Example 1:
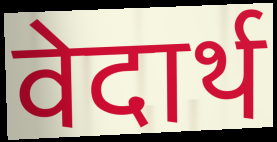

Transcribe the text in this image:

वेदार्थ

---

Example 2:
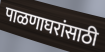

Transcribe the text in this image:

पाळणाघरांसाठी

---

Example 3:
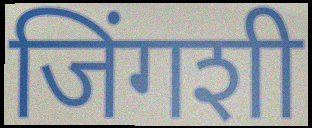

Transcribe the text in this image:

जिंगशी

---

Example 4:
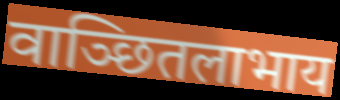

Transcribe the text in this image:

वाञ्छितलाभाय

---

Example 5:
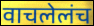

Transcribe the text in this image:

वाचलेलंच